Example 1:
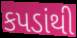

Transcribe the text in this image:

કપડાંથી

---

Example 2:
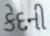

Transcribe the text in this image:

કેદની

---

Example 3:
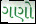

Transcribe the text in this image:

ગણો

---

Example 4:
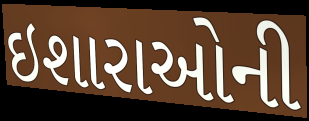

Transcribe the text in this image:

ઇશારાઓની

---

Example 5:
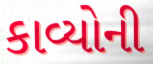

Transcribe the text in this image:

કાવ્યોની